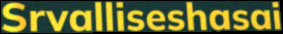
Srvalliseshasai